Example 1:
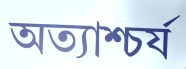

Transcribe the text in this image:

অত্যাশ্চর্য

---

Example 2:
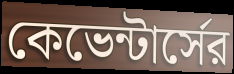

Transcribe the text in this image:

কেভেন্টার্সের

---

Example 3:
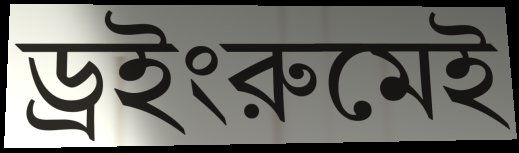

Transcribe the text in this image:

ড্রইংরুমেই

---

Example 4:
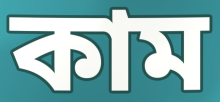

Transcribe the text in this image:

কাম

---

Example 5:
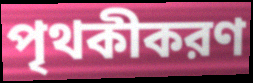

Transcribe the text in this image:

পৃথকীকরণ